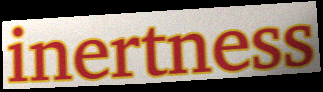
inertness